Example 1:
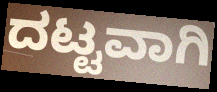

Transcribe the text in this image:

ದಟ್ಟವಾಗಿ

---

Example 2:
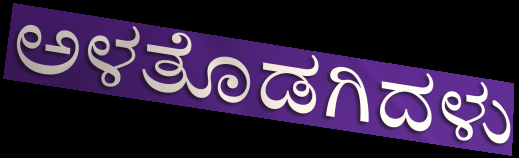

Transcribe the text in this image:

ಅಳತೊಡಗಿದಳು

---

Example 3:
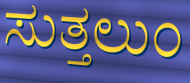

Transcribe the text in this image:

ಸುತ್ತಲುಂ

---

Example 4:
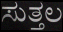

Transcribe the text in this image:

ಸುತ್ತಲ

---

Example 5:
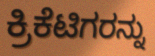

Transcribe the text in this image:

ಕ್ರಿಕೆಟಿಗರನ್ನು